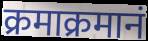
क्रमाक्रमानं